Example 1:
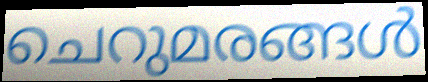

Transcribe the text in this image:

ചെറുമരങ്ങൾ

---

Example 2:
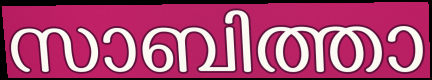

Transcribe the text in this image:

സാബിത്താ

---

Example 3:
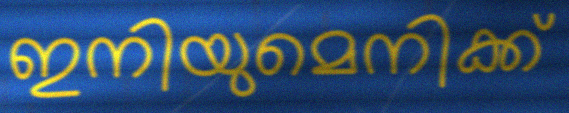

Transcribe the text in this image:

ഇനിയുമെനിക്ക്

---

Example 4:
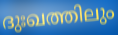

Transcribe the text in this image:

ദുഃഖത്തിലും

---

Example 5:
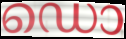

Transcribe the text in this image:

ഡൊ